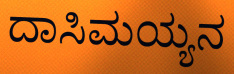
ದಾಸಿಮಯ್ಯನ